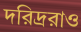
দরিদ্ররাও